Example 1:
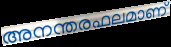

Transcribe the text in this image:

അനന്തരഫലമാണ്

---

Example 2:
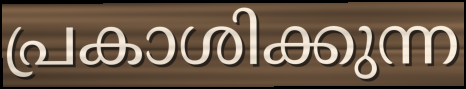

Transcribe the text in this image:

പ്രകാശിക്കുന്ന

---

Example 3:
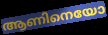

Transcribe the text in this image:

ആണിനെയോ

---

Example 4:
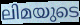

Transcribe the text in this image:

ലിമയുടെ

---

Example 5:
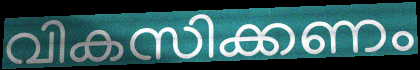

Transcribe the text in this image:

വികസിക്കണം